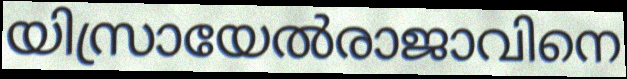
യിസ്രായേൽരാജാവിനെ